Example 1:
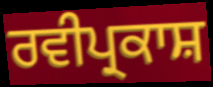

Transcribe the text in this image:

ਰਵੀਪ੍ਰਕਾਸ਼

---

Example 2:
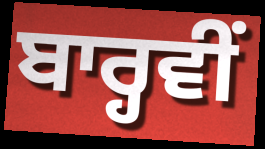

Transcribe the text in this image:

ਬਾਰ੍ਹਵੀਂ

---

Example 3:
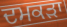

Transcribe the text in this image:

ਦਮਕੜਾ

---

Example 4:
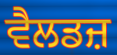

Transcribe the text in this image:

ਵੈਲਡਜ਼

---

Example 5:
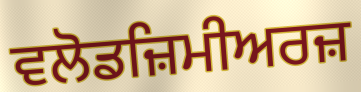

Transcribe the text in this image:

ਵਲੋਡਜ਼ਿਮੀਅਰਜ਼